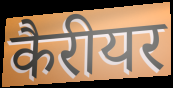
कैरीयर